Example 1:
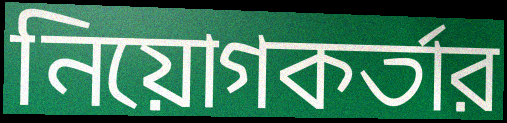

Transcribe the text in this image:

নিয়োগকর্তার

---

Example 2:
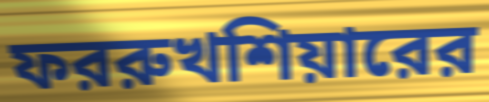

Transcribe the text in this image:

ফররুখশিয়ারের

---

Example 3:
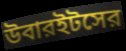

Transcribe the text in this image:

উবারইটসের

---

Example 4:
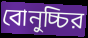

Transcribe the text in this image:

বোনুচ্চির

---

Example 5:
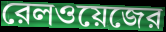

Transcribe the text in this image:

রেলওয়েজের